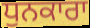
ਧੁਨਕਾਰਾ